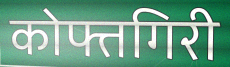
कोफ्तगिरी